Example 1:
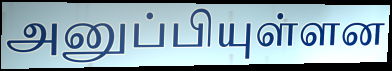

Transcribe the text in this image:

அனுப்பியுள்ளன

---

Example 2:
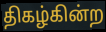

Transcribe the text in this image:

திகழ்கின்ற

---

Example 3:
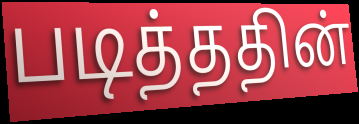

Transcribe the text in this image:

படித்ததின்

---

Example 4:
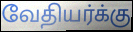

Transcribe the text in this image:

வேதியர்க்கு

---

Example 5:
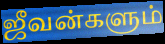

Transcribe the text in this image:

ஜீவன்களும்